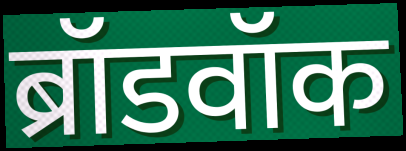
ब्रॉडवॉक